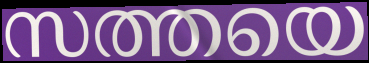
സത്തയെ